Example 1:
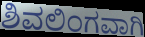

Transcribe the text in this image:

ಶಿವಲಿಂಗವಾಗಿ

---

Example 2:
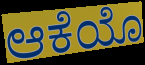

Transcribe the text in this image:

ಆಕೆಯೊ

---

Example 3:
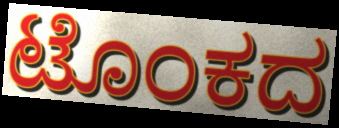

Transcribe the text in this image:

ಟೊಂಕದ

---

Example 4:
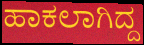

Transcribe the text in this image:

ಹಾಕಲಾಗಿದ್ದ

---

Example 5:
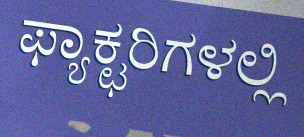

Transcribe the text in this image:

ಫ್ಯಾಕ್ಟರಿಗಳಲ್ಲಿ